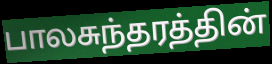
பாலசுந்தரத்தின்